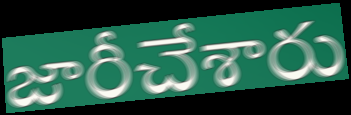
జారీచేశారు